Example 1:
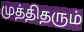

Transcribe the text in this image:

முத்திதரும்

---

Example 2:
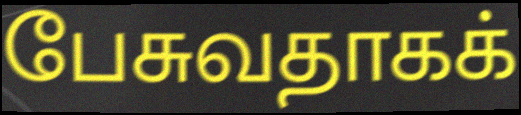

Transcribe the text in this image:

பேசுவதாகக்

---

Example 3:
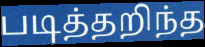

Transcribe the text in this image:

படித்தறிந்த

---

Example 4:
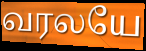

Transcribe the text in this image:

வரலயே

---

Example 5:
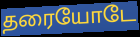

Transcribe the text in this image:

தரையோடே